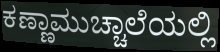
ಕಣ್ಣಾಮುಚ್ಚಾಲೆಯಲ್ಲಿ